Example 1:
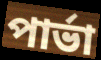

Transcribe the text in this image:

পার্ভা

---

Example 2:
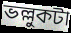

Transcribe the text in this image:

ভল্লুকটা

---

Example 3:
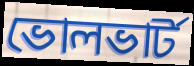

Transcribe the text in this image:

ভোলভার্ট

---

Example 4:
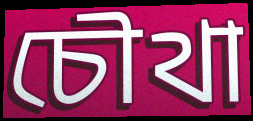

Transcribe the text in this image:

চৌথা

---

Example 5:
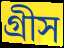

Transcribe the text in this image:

গ্রীস